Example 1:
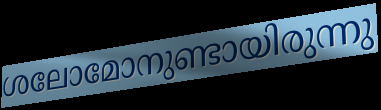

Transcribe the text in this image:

ശലോമോനുണ്ടായിരുന്നു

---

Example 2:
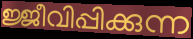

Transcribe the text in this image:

ജ്ജീവിപ്പിക്കുന്ന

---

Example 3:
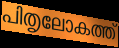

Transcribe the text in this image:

പിതൃലോകത്ത്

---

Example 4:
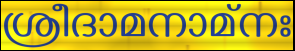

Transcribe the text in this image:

ശ്രീദാമനാമ്നഃ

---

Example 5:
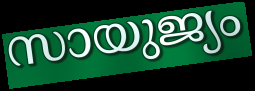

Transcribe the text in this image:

സായുജ്യം